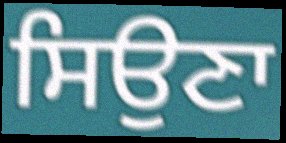
ਸਿਉਣਾ